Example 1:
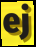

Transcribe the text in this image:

ej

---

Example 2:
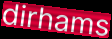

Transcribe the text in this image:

dirhams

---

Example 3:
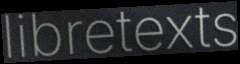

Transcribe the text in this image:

libretexts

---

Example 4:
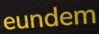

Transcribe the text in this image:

eundem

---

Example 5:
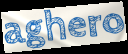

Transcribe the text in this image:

aghero